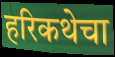
हरिकथेचा